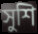
সুশি